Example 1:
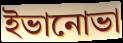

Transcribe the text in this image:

ইভানোভা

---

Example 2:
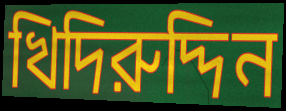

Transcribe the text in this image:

খিদিরুদ্দিন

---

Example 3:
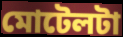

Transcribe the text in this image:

মোটেলটা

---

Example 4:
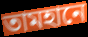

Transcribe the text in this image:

তামহানে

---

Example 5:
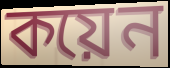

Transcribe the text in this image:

কয়েন